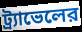
ট্র্যাভেলের